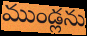
ముండ్లను